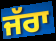
ਜੱਰਾ